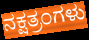
ನಕ್ಷತ್ರಂಗಳು